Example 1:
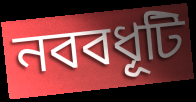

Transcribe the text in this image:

নববধূটি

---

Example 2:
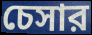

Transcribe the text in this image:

চেসার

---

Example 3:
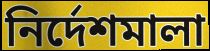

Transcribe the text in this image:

নির্দেশমালা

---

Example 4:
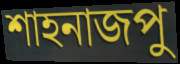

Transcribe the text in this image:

শাহনাজপু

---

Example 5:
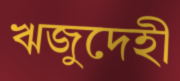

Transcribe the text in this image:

ঋজুদেহী